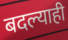
बदल्याही